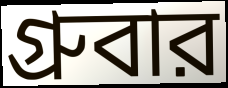
গ্রুবার